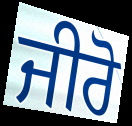
ਜੀਰੋ